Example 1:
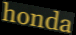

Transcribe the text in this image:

honda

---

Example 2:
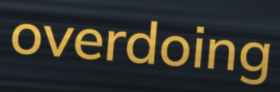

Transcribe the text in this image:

overdoing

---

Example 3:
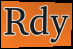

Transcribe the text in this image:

Rdy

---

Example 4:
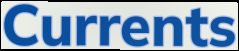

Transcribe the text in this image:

Currents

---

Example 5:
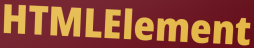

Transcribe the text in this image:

HTMLElement